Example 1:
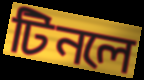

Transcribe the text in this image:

টিনলে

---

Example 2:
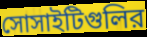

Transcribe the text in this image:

সোসাইটিগুলির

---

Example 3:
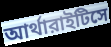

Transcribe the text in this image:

আর্থারাইটিসে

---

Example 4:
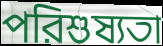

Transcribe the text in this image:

পরিশুষ্যতা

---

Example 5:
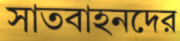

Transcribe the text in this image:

সাতবাহনদের